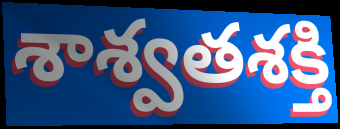
శాశ్వతశక్తి